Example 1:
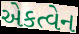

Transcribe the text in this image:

એકત્વેન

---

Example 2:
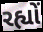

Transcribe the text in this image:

રહ્યોં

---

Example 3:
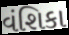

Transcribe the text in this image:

વંશિકા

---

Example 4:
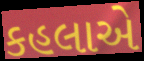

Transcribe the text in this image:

કહલાએ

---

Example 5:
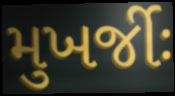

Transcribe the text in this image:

મુખર્જીઃ